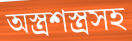
অস্ত্রশস্ত্রসহ